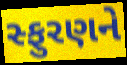
સ્ફુરણને